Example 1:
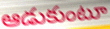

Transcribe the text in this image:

ఆడుకుంటూ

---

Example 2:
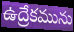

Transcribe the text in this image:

ఉద్రేకమును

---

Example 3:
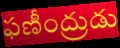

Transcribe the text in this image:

ఫణీంద్రుడు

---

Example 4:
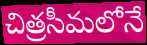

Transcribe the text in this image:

చిత్రసీమలోనే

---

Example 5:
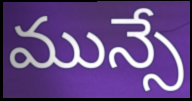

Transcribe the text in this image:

మున్సే